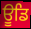
ਊਡਿ